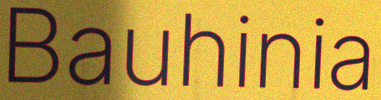
Bauhinia